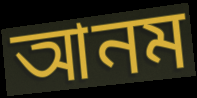
আনম